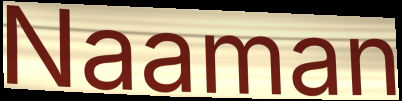
Naaman